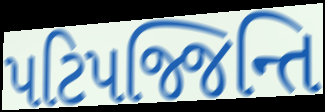
પટિપજ્જિન્તિ